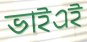
ভাইএই